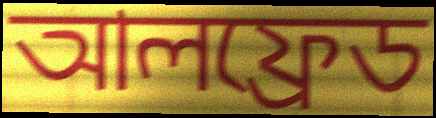
আলফ্ৰেড